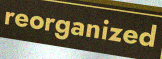
reorganized